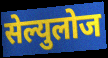
सेल्युलोज